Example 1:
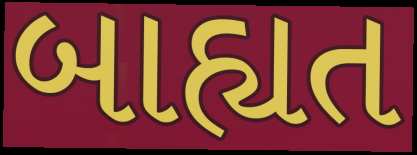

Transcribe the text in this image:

બાહ્યત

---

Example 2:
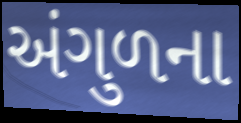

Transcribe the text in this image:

અંગુળના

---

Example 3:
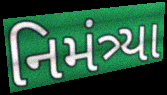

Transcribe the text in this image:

નિમંત્ર્યા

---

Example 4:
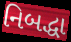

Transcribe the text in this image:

નિબદ્ધા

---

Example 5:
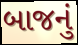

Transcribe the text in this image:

બાજનું